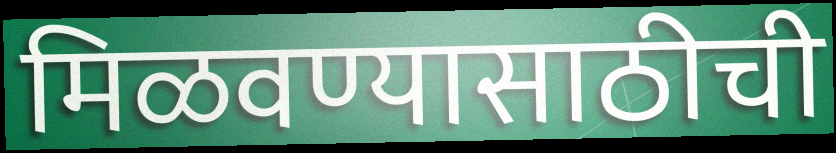
मिळवण्यासाठीची